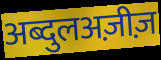
अब्दुलअज़ीज़